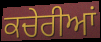
ਕਚੇਰੀਆਂ